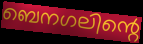
ബെനഗലിന്റെ